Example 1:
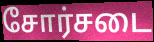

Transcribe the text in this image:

சோர்சடை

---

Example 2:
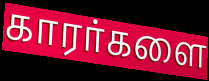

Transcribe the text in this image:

காரர்களை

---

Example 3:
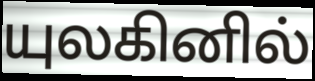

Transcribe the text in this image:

யுலகினில்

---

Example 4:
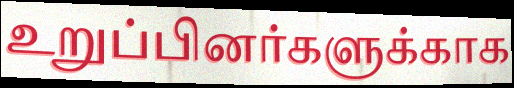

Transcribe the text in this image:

உறுப்பினர்களுக்காக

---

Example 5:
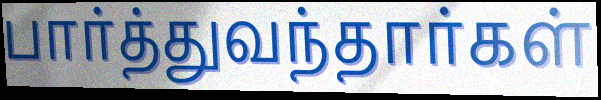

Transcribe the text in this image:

பார்த்துவந்தார்கள்